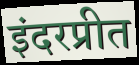
इंदरप्रीत